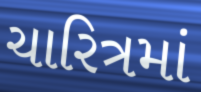
ચારિત્રમાં